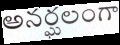
అనర్ఘలంగా